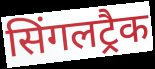
सिंगलट्रैक